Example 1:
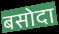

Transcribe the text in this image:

बसोदा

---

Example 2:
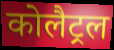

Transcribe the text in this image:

कोलैट्रल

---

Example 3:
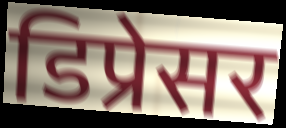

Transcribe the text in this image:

डिप्रेसर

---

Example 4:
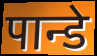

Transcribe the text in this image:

पान्डे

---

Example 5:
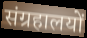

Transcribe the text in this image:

संग्रहालयों